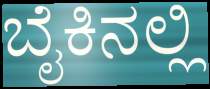
ಬೈಕಿನಲ್ಲಿ